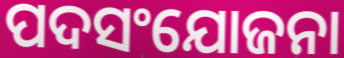
ପଦସଂଯୋଜନା